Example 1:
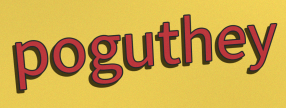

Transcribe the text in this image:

poguthey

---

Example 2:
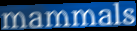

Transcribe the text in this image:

mammals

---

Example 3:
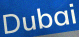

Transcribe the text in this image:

Dubai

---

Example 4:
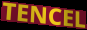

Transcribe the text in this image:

TENCEL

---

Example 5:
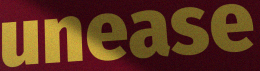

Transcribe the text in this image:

unease